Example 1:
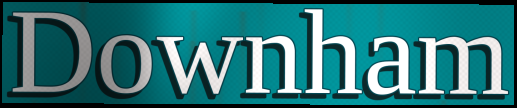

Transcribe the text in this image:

Downham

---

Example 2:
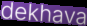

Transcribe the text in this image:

dekhava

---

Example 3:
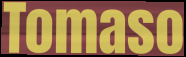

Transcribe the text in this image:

Tomaso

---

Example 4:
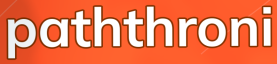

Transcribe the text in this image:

paththroni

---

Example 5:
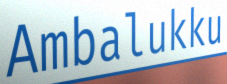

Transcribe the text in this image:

Ambalukku